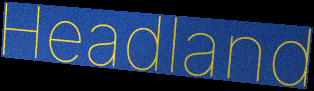
Headland